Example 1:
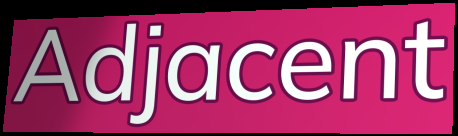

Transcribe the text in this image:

Adjacent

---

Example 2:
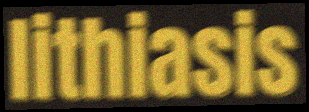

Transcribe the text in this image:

lithiasis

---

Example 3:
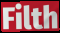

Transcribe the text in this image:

Filth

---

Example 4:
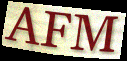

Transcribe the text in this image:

AFM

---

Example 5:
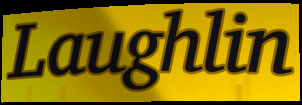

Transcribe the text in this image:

Laughlin